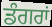
ਡੰਗਰਾਂ